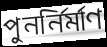
পুনৰ্নিৰ্মাণ